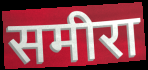
समीरा